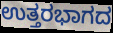
ಉತ್ತರಭಾಗದ